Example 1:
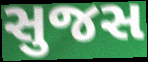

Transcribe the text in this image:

સુજસ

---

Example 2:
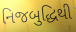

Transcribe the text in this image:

નિજબુદ્ધિથી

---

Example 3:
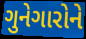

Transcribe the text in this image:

ગુનેગારોને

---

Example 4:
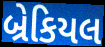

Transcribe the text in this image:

બ્રેકિયલ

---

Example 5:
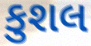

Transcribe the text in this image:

કુશલ